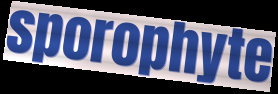
sporophyte